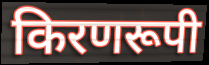
किरणरूपी